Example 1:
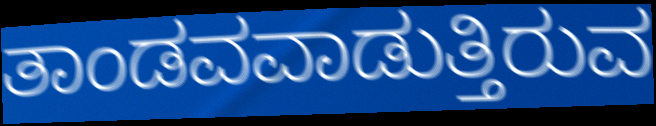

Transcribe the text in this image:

ತಾಂಡವವಾಡುತ್ತಿರುವ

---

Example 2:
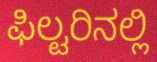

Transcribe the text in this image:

ಫಿಲ್ಟರಿನಲ್ಲಿ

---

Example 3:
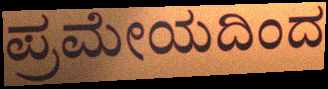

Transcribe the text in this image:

ಪ್ರಮೇಯದಿಂದ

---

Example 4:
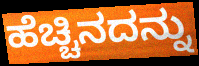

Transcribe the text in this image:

ಹೆಚ್ಚಿನದನ್ನು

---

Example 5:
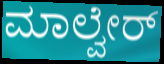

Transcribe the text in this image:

ಮಾಲ್ವೇರ್